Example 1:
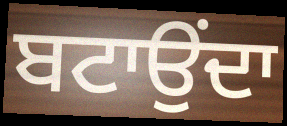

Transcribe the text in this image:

ਬਟਾਉਂਦਾ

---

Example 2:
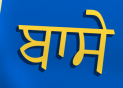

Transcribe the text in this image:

ਬਾਸੇ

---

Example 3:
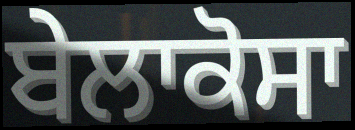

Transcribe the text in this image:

ਬੇਲਾਕੋਸਾ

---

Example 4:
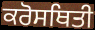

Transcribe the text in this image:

ਕਰੋਸਥਿਤੀ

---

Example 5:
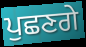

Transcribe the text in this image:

ਪੁਛਣਗੇ